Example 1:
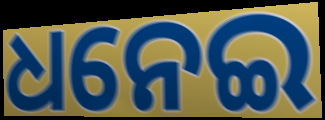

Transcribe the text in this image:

ଧନେଇ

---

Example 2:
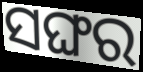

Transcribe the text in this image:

ସଙ୍ଘର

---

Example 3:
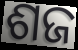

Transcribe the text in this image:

ଶଜ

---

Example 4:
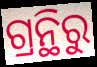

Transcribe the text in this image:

ଗ୍ରନ୍ଥିରୁ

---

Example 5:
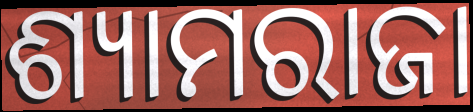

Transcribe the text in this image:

ଶ୍ୟାମରାଜା